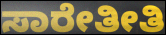
ಸಾರೇತೀತಿ